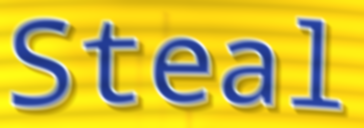
Steal